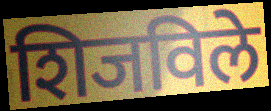
शिजविले